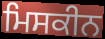
ਮਿਸਕੀਨ